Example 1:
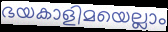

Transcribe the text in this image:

ഭയകാളിമയെല്ലാം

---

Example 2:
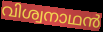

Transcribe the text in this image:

വിശ്വനാഥൻ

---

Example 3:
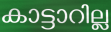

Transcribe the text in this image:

കാട്ടാറില്ല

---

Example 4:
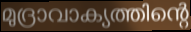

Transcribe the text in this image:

മുദ്രാവാക്യത്തിന്റെ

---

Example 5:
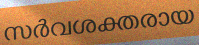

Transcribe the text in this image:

സർവശക്തരായ